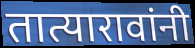
तात्यारावांनी